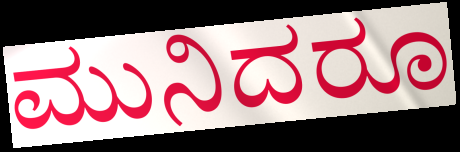
ಮುನಿದರೂ